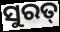
ସୁରତ୍